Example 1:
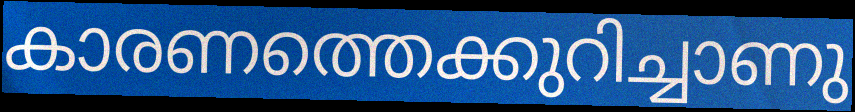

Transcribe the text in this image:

കാരണത്തെക്കുറിച്ചാണു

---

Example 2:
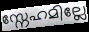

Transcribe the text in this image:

സ്നേഹമില്ലേ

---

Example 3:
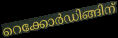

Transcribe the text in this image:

റെക്കോർഡിങ്ങിന്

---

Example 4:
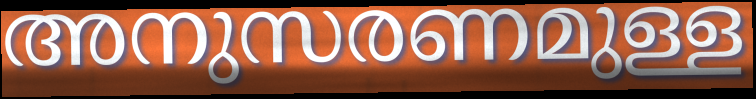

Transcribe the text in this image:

അനുസരണമുള്ള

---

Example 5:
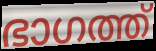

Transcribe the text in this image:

ഭാഗത്ത്